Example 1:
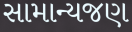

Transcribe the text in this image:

સામાન્યજણ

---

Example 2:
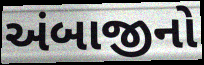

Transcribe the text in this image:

અંબાજીનો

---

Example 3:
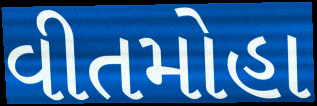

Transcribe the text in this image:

વીતમોહા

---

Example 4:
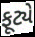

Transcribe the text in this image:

ફૂટ્યે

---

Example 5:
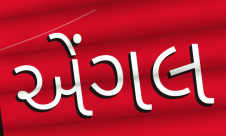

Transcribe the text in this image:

એંગલ